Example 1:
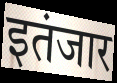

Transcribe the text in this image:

इतंजार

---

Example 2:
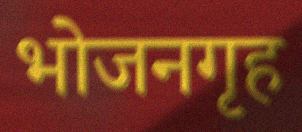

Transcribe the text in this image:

भोजनगृह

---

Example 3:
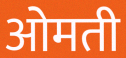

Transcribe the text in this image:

ओमती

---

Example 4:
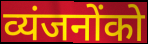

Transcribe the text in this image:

व्यंजनोंको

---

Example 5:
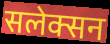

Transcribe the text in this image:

सलेक्सन